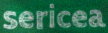
sericea